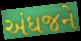
અંધજને